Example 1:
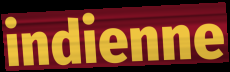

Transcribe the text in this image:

indienne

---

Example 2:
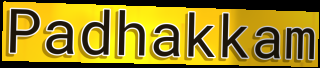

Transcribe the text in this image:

Padhakkam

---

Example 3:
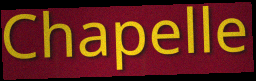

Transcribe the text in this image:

Chapelle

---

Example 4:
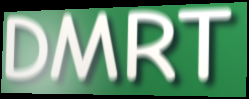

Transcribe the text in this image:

DMRT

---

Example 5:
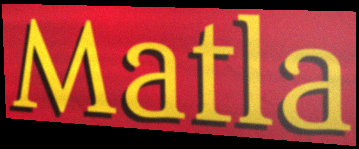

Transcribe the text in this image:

Matla